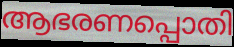
ആഭരണപ്പൊതി